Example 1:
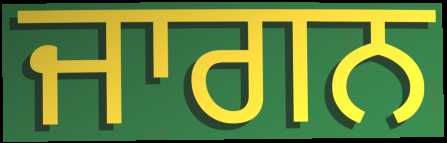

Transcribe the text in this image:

ਜਾਗਨ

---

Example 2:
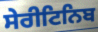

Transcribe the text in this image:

ਸੇਰੀਟਿਨਿਬ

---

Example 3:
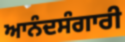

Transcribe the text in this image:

ਆਨੰਦਸੰਗਾਰੀ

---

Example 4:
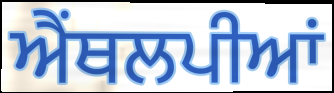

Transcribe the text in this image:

ਐਂਥਲਪੀਆਂ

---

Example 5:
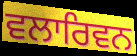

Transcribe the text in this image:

ਵਲਾਰਿਵਨ